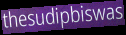
thesudipbiswas